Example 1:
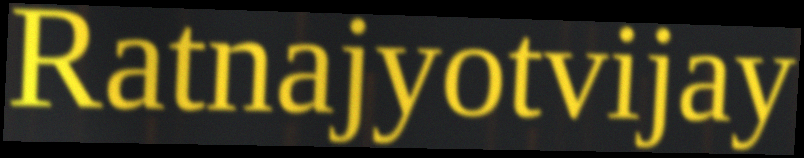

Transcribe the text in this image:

Ratnajyotvijay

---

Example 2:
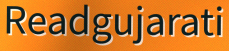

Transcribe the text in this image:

Readgujarati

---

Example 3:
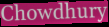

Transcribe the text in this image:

Chowdhury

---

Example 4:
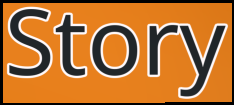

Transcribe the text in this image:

Story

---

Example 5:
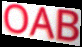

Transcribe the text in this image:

OAB